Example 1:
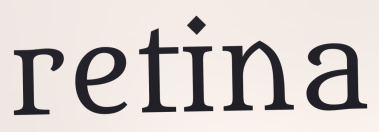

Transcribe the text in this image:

retina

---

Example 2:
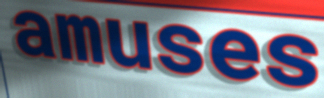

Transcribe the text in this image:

amuses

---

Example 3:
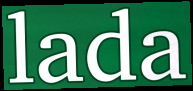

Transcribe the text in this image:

lada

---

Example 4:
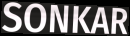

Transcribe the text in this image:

SONKAR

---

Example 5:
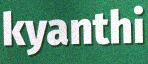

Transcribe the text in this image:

kyanthi